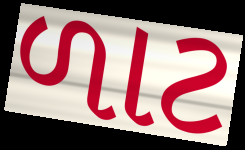
ળાટ